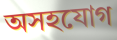
অসহযোগ